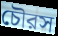
চৌরস